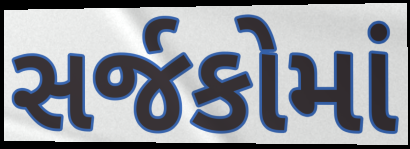
સર્જકોમાં